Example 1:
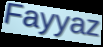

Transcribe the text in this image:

Fayyaz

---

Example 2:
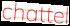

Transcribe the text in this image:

chattel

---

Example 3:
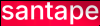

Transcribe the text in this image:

santape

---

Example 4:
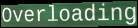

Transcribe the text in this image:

Overloading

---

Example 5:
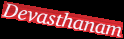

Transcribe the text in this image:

Devasthanam